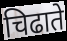
चिढाते